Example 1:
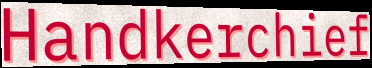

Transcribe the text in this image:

Handkerchief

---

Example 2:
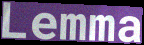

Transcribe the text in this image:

Lemma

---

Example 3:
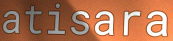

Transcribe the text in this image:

atisara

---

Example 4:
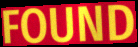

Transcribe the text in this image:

FOUND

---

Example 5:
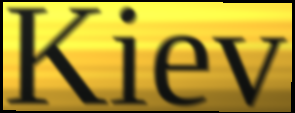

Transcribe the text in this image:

Kiev